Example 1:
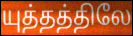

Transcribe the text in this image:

யுத்தத்திலே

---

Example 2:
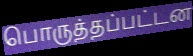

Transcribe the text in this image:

பொருத்தப்பட்டன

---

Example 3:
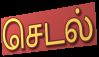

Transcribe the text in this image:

செடல்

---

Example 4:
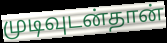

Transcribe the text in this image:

முடிவுடன்தான்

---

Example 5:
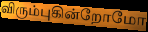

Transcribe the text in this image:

விரும்புகின்றோமோ